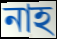
নাহ